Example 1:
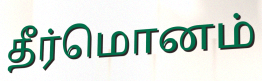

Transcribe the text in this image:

தீர்மொனம்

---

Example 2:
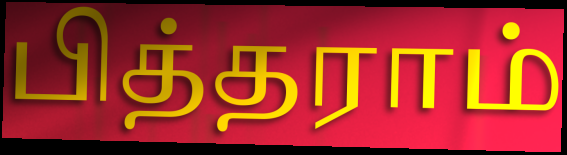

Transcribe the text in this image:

பித்தராம்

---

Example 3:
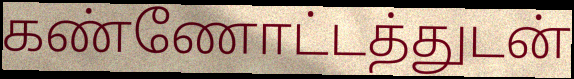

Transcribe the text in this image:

கண்ணோட்டத்துடன்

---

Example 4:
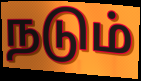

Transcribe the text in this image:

நடும்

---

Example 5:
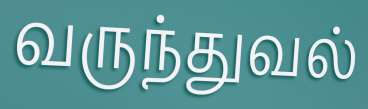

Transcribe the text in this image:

வருந்துவல்